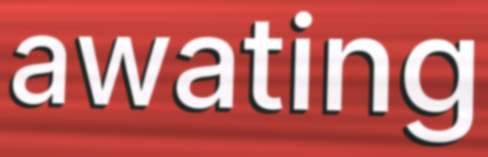
awating